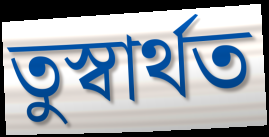
তুস্বাৰ্থত